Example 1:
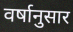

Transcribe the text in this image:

वर्षानुसार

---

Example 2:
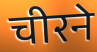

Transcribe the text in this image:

चीरने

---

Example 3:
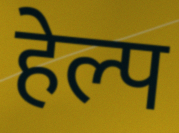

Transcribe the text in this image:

हेल्प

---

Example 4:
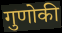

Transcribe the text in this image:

गुणोकी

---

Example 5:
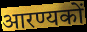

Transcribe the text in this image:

आरण्यकों